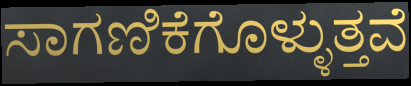
ಸಾಗಣಿಕೆಗೊಳ್ಳುತ್ತವೆ